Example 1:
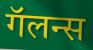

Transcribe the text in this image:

गॅलन्स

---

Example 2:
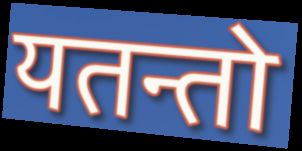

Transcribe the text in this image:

यतन्तो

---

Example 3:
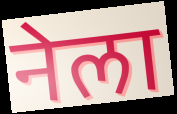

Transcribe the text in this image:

नेला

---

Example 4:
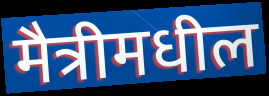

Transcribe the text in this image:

मैत्रीमधील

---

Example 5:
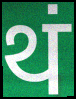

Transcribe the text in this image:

थं